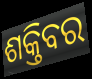
ଶକ୍ତିବର